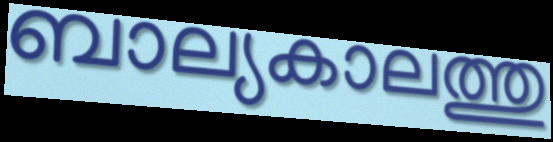
ബാല്യകാലത്തു